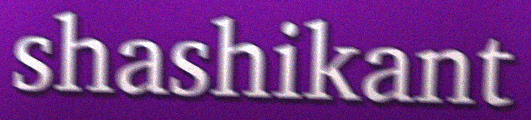
shashikant